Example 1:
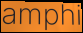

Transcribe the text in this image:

amphi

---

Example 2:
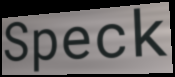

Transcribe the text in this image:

Speck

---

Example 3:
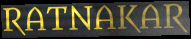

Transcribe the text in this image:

RATNAKAR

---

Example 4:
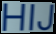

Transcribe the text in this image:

HIJ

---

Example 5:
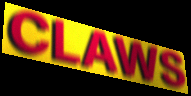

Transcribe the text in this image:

CLAWS